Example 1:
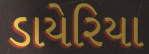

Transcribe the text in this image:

ડાયેરિયા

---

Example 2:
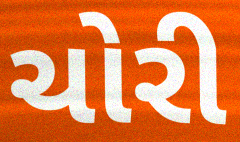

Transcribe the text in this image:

ચોરી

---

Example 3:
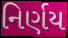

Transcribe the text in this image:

નિર્ણય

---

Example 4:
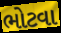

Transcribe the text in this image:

ભોટવા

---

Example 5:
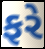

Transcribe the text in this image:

ફરે